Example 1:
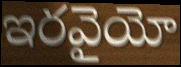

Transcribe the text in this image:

ఇరవైయో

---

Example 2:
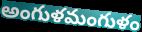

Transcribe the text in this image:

అంగుళమంగుళం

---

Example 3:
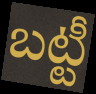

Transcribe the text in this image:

బట్టీ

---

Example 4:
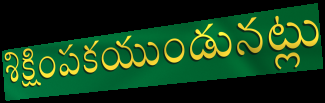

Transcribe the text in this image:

శిక్షింపకయుండునట్లు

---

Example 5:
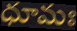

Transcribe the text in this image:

ధూమః